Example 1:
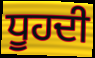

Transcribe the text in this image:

ਧੂਹਦੀ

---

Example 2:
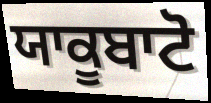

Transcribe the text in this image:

ਯਾਕੂਬਾਟੋ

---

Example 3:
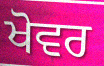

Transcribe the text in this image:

ਖੋਵਰ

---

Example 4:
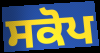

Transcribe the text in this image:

ਸਕੋਪ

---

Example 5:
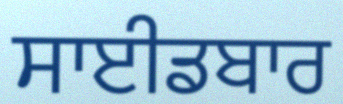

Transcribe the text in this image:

ਸਾਈਡਬਾਰ